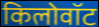
किलोवॉट